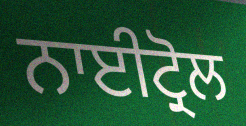
ਨਾਈਟ੍ਰੋਲ